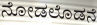
ನೋಡಲೊಡನೆ